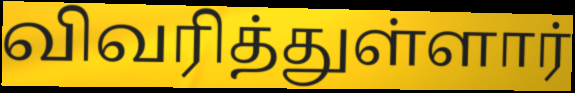
விவரித்துள்ளார்